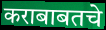
कराबाबतचे